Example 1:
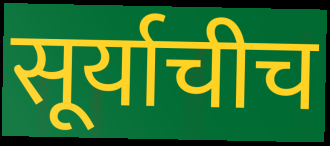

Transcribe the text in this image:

सूर्याचीच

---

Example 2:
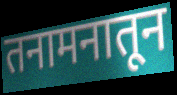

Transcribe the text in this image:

तनामनातून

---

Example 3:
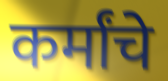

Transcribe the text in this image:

कर्मांचे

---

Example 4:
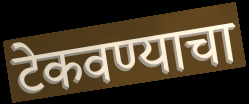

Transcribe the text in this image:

टेकवण्याचा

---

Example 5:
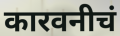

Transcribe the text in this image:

कारवनीचं